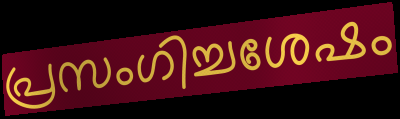
പ്രസംഗിച്ചശേഷം